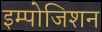
इम्पोजिशन